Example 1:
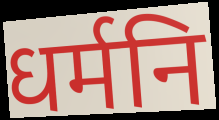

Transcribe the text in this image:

धर्मनि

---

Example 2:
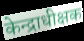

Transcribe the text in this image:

केन्द्राधीक्षक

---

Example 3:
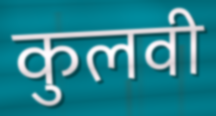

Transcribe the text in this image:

कुलवी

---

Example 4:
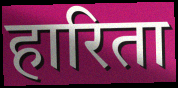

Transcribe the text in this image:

हारिता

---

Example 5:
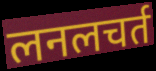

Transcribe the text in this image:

लनलचर्त